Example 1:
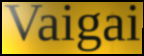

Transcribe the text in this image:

Vaigai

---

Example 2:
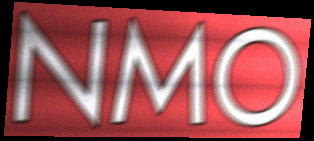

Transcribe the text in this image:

NMO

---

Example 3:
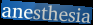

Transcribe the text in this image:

anesthesia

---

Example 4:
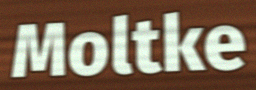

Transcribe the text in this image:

Moltke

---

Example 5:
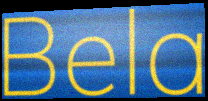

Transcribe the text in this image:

Bela